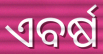
ଏବର୍ଷ